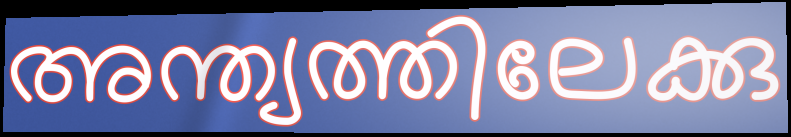
അന്ത്യത്തിലേക്കു